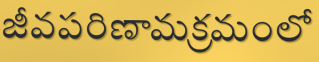
జీవపరిణామక్రమంలో